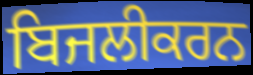
ਬਿਜਲੀਕਰਨ